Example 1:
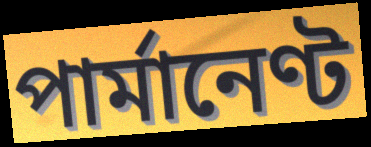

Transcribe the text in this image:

পাৰ্মানেণ্ট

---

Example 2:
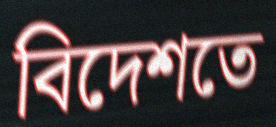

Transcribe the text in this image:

বিদেশতে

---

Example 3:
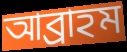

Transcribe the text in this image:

আব্ৰাহম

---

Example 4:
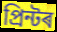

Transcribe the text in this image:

প্ৰিন্টৰ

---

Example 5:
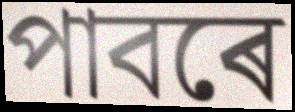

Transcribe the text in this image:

পাবৰে